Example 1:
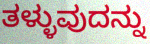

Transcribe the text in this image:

ತಳ್ಳುವುದನ್ನು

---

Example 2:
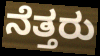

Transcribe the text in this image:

ನೆತ್ತರು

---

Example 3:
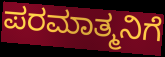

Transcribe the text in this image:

ಪರಮಾತ್ಮನಿಗೆ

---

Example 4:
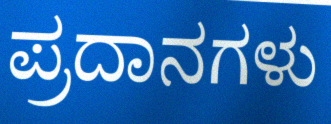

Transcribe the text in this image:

ಪ್ರದಾನಗಳು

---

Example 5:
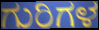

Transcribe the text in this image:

ಗುರಿಗಳ